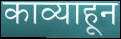
काव्याहून